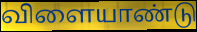
விளையாண்டு